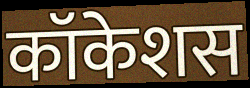
कॉकेशस